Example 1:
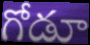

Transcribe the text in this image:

గోడూ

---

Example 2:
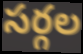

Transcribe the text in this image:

సర్గల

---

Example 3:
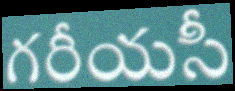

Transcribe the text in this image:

గరీయసీ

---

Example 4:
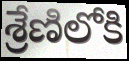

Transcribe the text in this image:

శ్రేణిలోకి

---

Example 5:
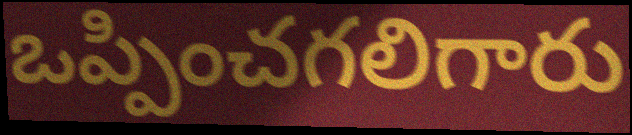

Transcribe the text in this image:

ఒప్పించగలిగారు